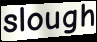
slough